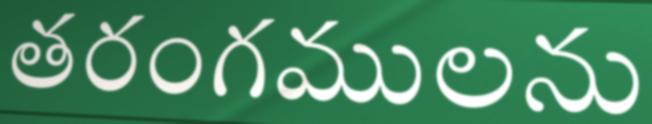
తరంగములను